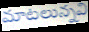
మాటలున్నవి